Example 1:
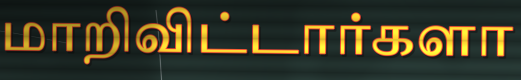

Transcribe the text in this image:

மாறிவிட்டார்களா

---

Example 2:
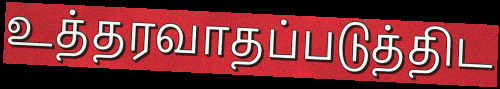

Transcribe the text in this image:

உத்தரவாதப்படுத்திட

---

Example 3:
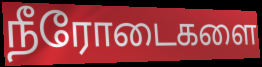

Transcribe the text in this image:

நீரோடைகளை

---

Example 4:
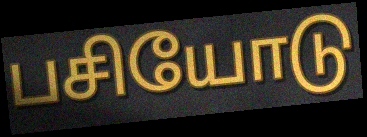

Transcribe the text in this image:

பசியோடு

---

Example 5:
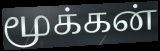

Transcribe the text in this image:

மூக்கன்